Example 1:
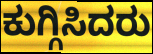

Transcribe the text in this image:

ಕುಗ್ಗಿಸಿದರು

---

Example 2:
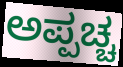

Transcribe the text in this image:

ಅಪ್ಪಚ್ಚ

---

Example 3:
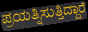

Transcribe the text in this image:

ಪ್ರಯತ್ನಿಸುತ್ತಿದ್ದಾರೆ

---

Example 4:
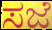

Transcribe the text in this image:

ಸಜೆ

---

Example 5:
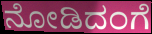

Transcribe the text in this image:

ನೋಡಿದಂಗೆ